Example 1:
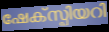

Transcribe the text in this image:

ഷേക്സ്പിയറി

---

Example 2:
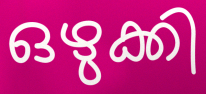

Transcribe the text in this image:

ഒഴുക്കി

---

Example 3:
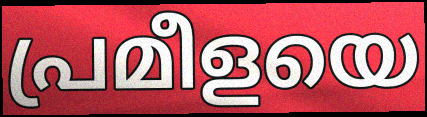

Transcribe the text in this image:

പ്രമീളയെ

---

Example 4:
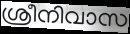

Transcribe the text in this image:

ശ്രീനിവാസ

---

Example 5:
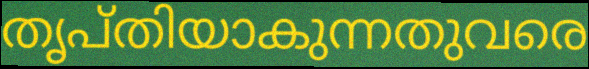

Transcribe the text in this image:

തൃപ്തിയാകുന്നതുവരെ